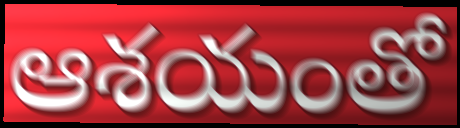
ఆశయంతో